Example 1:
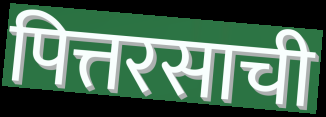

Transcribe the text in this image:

पित्तरसाची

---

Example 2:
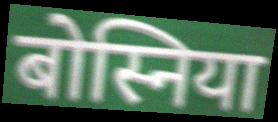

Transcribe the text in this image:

बोस्निया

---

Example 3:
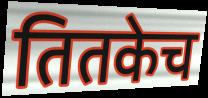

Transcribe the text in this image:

तितकेच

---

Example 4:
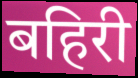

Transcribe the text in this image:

बहिरी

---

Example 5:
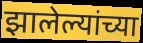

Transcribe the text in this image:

झालेल्यांच्या